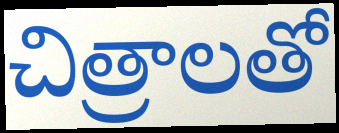
చిత్రాలతో